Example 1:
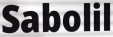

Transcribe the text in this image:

Sabolil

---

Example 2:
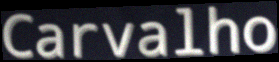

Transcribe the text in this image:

Carvalho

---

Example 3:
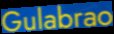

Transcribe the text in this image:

Gulabrao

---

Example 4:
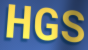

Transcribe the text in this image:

HGS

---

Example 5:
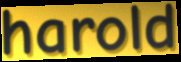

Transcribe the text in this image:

harold